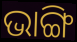
ଭାଙ୍ଗି